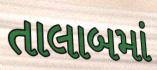
તાલાબમાં